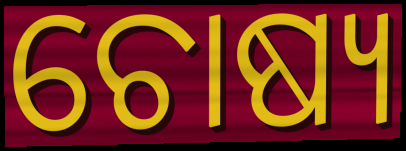
ଚୋଷ୍ୟ